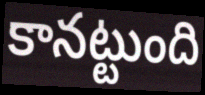
కానట్టుంది